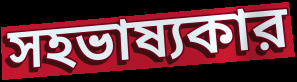
সহভাষ্যকার